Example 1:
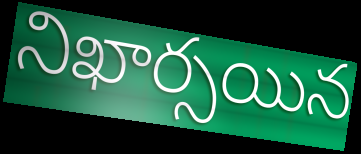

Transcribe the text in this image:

నిఖార్సయిన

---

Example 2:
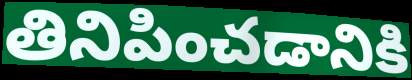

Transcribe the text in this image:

తినిపించడానికి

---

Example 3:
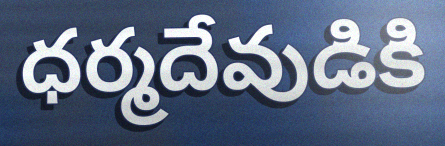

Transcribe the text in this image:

ధర్మదేవుడికి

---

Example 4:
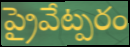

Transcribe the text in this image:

ప్రైవేట్పరం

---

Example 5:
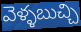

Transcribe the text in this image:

వెళ్ళబుచ్చి